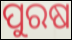
ପୁରଷ